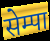
सेम्पा